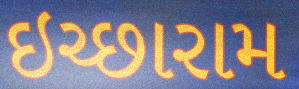
ઇચ્છારામ